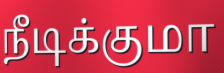
நீடிக்குமா